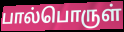
பால்பொருள்